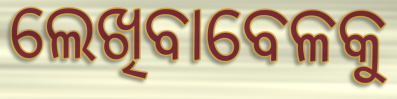
ଲେଖିବାବେଳକୁ